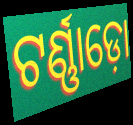
ଟର୍ଣ୍ଣାଡ଼ୋ